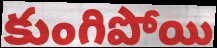
కుంగిపోయి